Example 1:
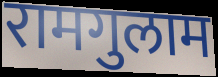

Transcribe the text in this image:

रामगुलाम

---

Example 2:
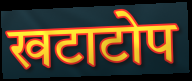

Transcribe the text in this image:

खटाटोप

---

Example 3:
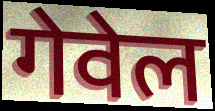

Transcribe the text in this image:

गेवेल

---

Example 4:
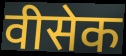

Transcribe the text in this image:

वीसेक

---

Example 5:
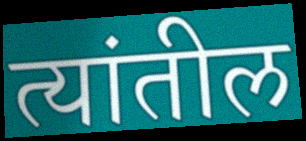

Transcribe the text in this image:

त्‍यांतील